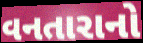
વનતારાનો